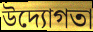
উদ্যোগতা